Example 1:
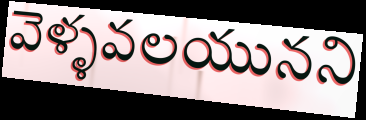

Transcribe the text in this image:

వెళ్ళవలయునని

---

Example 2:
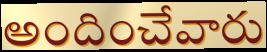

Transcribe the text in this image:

అందించేవారు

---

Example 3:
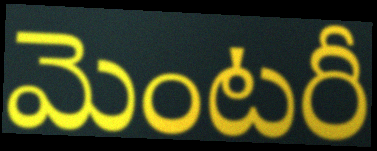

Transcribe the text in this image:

మెంటరీ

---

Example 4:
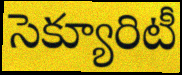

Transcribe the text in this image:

సెక్యూరిటీ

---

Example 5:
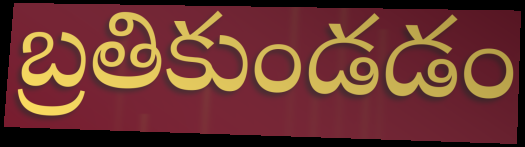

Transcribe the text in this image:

బ్రతికుండడం